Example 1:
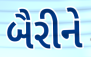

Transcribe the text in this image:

બૈરીને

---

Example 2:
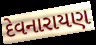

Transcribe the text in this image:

દેવનારાયણ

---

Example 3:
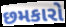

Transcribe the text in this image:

છમકારો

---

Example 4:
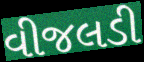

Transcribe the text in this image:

વીજલડી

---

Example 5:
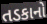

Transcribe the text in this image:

તડકાનો